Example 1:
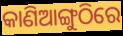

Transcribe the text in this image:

କାଣିଆଙ୍ଗୁଠିରେ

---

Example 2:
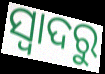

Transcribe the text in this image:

ସ୍ୱାଦରୁ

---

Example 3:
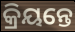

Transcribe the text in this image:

କ୍ରିୟନ୍ତେ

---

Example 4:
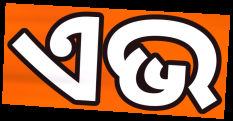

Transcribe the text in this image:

ଏଭ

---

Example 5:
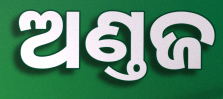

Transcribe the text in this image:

ଅଣ୍ତଜ